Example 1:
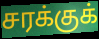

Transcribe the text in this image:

சரக்குக்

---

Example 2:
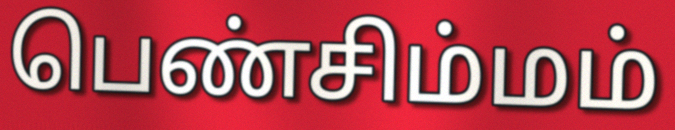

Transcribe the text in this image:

பெண்சிம்மம்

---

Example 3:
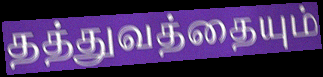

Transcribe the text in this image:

தத்துவத்தையும்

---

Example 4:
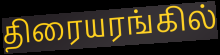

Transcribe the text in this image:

திரையரங்கில்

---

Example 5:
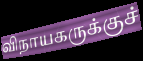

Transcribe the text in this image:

விநாயகருக்குச்